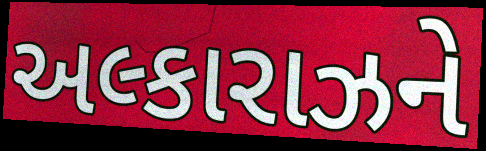
અલ્કારાઝને